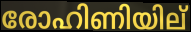
രോഹിണിയില്